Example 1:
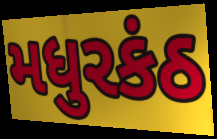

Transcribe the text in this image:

મધુરકંઠ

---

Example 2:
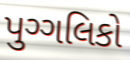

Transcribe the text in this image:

પુગ્ગલિકો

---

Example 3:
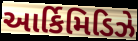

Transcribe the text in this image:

આર્કિમિડિઝે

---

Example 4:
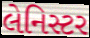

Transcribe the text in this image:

લેનિસ્ટર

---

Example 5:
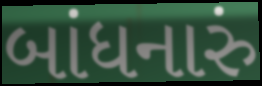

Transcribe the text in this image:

બાંધનારું